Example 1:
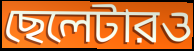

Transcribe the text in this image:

ছেলেটারও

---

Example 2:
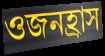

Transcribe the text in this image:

ওজনহ্রাস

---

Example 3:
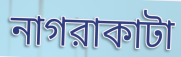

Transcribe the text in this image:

নাগরাকাটা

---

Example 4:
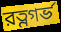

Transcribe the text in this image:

রত্নগর্ভ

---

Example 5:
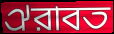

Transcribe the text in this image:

ঐরাবত